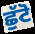
ਛੁੱਟੋ